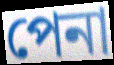
পেনা